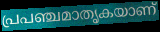
പ്രപഞ്ചമാതൃകയാണ്